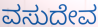
ವಸುದೇವ